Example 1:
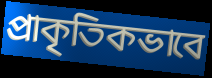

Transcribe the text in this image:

প্রাকৃতিকভাবে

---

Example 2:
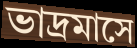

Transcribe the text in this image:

ভাদ্রমাসে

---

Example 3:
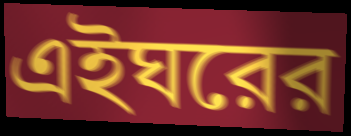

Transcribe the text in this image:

এইঘরের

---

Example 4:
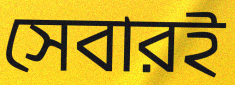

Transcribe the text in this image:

সেবারই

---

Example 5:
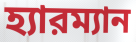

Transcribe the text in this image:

হ্যারম্যান